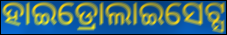
ହାଇଡ୍ରୋଲାଇସେଟ୍ସ